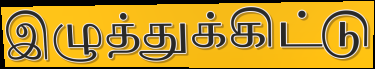
இழுத்துக்கிட்டு